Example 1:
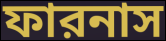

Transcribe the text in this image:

ফারনাস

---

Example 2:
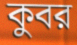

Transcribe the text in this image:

কুবর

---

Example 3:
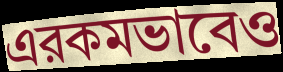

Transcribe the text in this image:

এরকমভাবেও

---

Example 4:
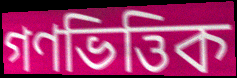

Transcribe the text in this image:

গণভিত্তিক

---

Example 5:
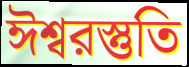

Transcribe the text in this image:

ঈশ্বরস্তুতি